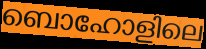
ബൊഹോളിലെ